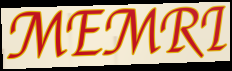
MEMRI